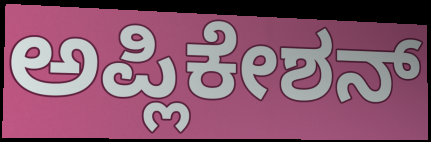
ಅಪ್ಲಿಕೇಶನ್